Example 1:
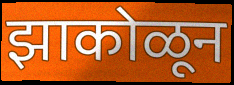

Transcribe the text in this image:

झाकोळून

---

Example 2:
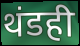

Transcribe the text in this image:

थंडही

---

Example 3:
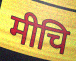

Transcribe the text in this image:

मीचि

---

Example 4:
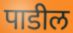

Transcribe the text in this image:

पाडील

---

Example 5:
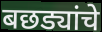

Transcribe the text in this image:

बछड्यांचे